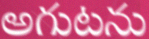
అగుటను